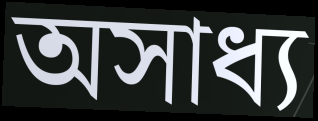
অসাধ্য